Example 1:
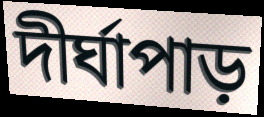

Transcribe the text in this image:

দীর্ঘাপাড়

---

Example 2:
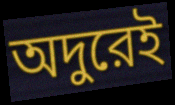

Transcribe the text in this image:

অদুরেই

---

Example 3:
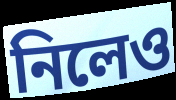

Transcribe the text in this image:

নিলেও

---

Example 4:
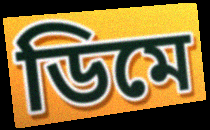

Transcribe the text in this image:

ডিমে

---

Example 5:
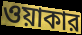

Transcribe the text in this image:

ওয়াকার